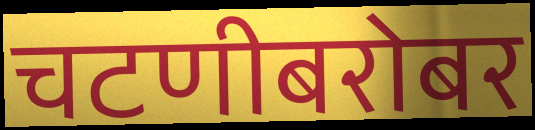
चटणीबरोबर